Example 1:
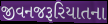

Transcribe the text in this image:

જીવનજરૂરિયાતના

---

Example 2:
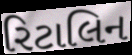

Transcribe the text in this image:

રિટાલિન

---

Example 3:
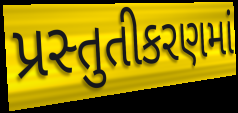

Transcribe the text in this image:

પ્રસ્તુતીકરણમાં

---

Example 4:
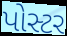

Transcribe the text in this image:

પોસ્ટર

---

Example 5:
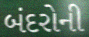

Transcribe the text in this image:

બંદરોની